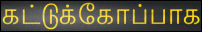
கட்டுக்கோப்பாக